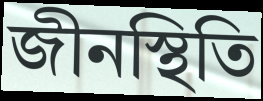
জীনস্থিতি